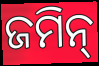
ଜମିନ୍